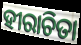
ହୀରାଚିତା